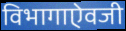
विभागाऐवजी